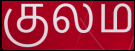
குலம